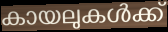
കായലുകൾക്ക്